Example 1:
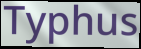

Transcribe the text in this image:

Typhus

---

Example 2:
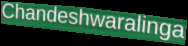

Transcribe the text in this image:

Chandeshwaralinga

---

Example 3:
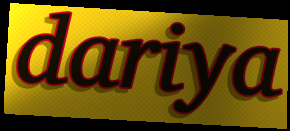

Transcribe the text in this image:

dariya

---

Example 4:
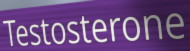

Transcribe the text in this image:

Testosterone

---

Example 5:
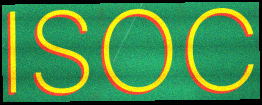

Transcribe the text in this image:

ISOC